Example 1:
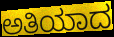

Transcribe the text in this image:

ಅತಿಯಾದ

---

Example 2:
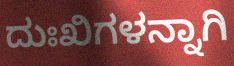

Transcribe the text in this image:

ದುಃಖಿಗಳನ್ನಾಗಿ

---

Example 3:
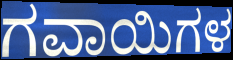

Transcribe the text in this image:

ಗವಾಯಿಗಳ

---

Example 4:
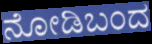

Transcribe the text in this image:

ನೋಡಿಬಂದ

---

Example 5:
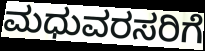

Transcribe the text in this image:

ಮಧುವರಸರಿಗೆ